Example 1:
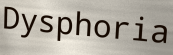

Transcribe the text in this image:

Dysphoria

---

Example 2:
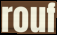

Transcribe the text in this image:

rouf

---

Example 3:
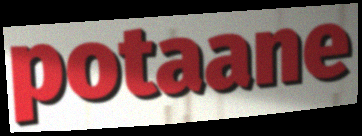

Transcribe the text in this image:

potaane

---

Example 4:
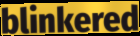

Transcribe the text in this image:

blinkered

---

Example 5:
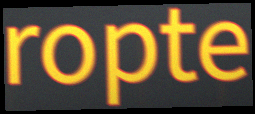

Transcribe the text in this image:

ropte